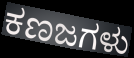
ಕಣಜಗಳು